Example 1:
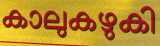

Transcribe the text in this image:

കാലുകഴുകി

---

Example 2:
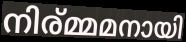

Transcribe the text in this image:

നിര്മ്മമനായി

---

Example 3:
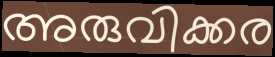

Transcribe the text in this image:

അരുവിക്കര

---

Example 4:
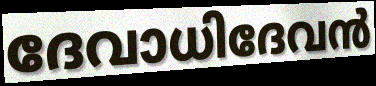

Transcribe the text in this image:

ദേവാധിദേവൻ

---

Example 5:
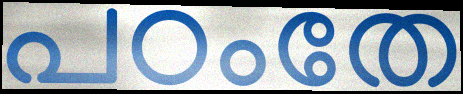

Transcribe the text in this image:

പഠംതേ